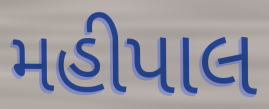
મહીપાલ